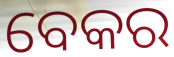
ବେକର